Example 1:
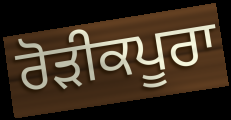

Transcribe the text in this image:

ਰੋੜੀਕਪੂਰਾ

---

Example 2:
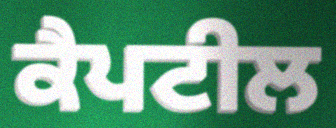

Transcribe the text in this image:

ਕੈਪਟੀਲ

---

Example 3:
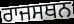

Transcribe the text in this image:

ਰਾਜਸਥਨ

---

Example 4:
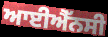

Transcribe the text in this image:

ਆਈਐੱਨਸੀ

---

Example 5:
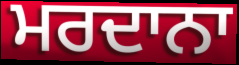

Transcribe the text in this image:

ਮਰਦਾਨਾ